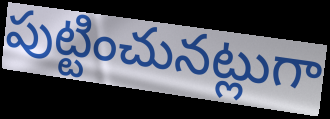
పుట్టించునట్లుగా